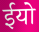
ईयो